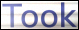
Took